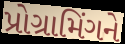
પ્રોગ્રામિંગને